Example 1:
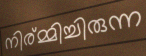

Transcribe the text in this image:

നിര്മ്മിച്ചിരുന്ന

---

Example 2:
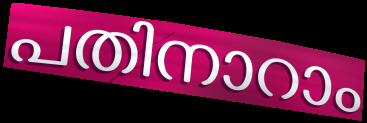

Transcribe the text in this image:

പതിനാറാം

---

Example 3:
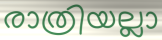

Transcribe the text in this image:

രാത്രിയല്ലാ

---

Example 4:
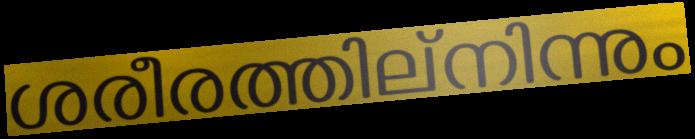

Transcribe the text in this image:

ശരീരത്തില്നിന്നും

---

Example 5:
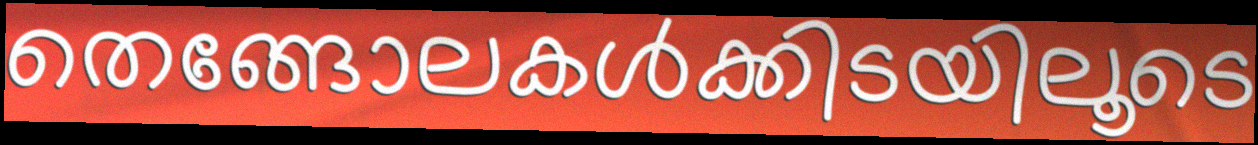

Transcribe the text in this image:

തെങ്ങോലകൾക്കിടയിലൂടെ